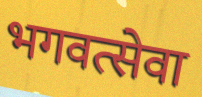
भगवत्सेवा